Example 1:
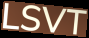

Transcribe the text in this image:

LSVT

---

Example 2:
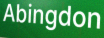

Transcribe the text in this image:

Abingdon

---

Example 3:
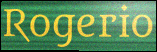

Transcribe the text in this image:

Rogerio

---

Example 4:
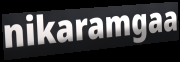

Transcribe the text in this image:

nikaramgaa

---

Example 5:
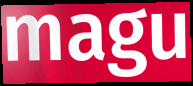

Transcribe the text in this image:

magu